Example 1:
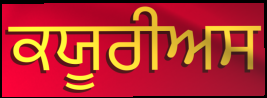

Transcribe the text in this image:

ਕਯੂਰੀਅਸ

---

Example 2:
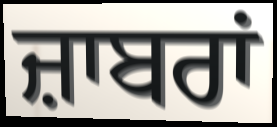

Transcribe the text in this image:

ਜ਼ਾਬਰਾਂ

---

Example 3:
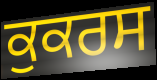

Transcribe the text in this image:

ਕੁਕਰਸ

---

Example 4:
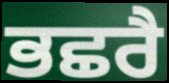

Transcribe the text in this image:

ਭਛਰੈ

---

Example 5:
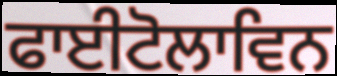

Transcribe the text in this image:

ਫਾਈਟੋਲਾਵਿਨ